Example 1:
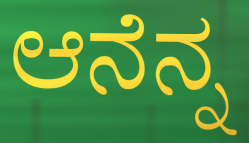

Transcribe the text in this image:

ಆನೆನ್ನ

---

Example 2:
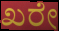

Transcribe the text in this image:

ಖರೇ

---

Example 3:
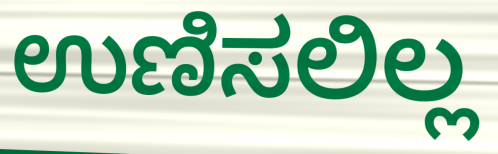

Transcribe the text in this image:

ಉಣಿಸಲಿಲ್ಲ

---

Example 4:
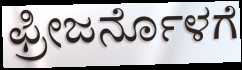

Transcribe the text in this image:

ಫ್ರೀಜರ್ನೊಳಗೆ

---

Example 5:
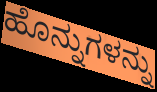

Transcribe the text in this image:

ಹೊನ್ನುಗಳನ್ನು